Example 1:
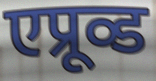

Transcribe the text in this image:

एप्रूव्ड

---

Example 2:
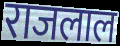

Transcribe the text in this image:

राजलाल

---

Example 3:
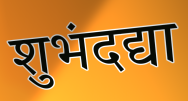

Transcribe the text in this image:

शुभंदद्या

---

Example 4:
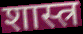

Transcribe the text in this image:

शास्‍त्र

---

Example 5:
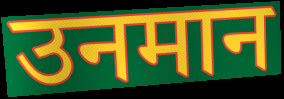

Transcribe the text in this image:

उनमान